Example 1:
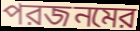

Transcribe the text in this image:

পরজনমের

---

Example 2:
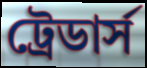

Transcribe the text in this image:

ট্রেডার্স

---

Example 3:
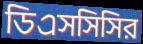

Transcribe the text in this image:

ডিএসসিসির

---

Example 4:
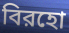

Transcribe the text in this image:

বিরহো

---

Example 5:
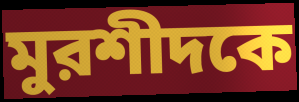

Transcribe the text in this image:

মুরশীদকে